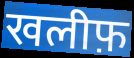
खलीफ़